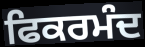
ਫਿਕਰਮੰਦ